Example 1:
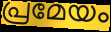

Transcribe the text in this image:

പ്രമേയം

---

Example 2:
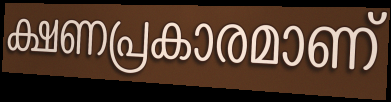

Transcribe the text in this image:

ക്ഷണപ്രകാരമാണ്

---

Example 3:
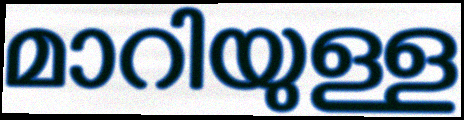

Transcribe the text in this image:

മാറിയുള്ള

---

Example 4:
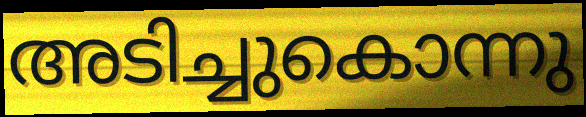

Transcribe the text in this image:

അടിച്ചുകൊന്നു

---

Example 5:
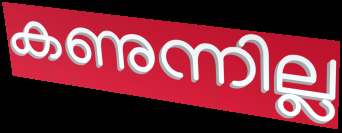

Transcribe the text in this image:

കണുന്നില്ല